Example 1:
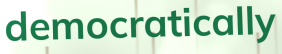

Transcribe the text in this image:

democratically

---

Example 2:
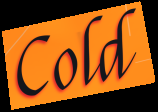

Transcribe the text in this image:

Cold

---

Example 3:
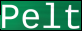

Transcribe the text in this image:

Pelt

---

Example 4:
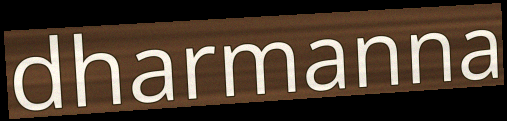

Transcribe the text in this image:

dharmanna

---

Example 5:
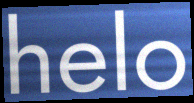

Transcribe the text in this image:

helo